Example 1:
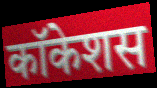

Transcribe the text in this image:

कॉकेशस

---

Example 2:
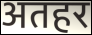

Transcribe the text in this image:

अतहर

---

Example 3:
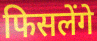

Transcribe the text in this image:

फिसलेंगे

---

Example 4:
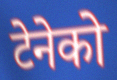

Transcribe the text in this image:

टेनेको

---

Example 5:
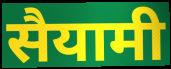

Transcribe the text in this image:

सैयामी